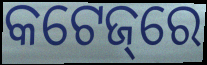
କଟେଜ୍‌ରେ